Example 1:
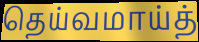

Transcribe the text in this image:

தெய்வமாய்த்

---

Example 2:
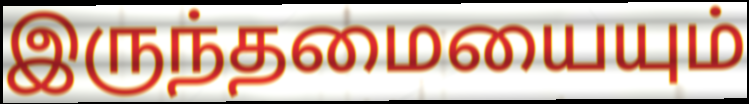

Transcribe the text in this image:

இருந்தமையையும்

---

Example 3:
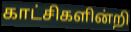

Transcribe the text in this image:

காட்சிகளின்றி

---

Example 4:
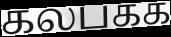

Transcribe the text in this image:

கலபகக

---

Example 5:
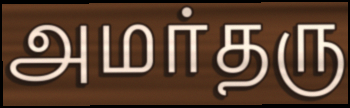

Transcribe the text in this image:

அமர்தரு